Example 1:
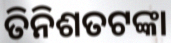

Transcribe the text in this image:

ତିନିଶତଟଙ୍କା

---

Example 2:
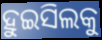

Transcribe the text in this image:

ହୁଇସିଲକୁ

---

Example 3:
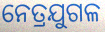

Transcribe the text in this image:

ନେତ୍ରଯୁଗଳ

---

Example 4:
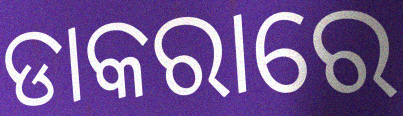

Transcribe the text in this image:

ଡାକରାରେ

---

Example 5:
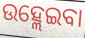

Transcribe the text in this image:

ଉହ୍ଲେଇବା